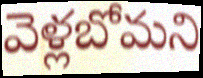
వెళ్లబోమని